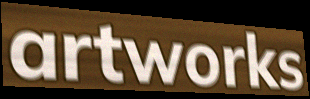
artworks